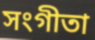
সংগীতা